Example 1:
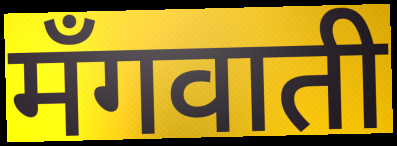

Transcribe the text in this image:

मँगवाती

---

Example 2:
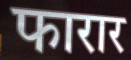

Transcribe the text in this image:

फारार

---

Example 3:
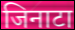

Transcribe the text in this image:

जिनाटा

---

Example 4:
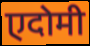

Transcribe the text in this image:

एदोमी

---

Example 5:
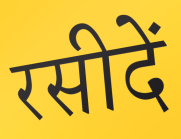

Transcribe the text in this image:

रसीदें